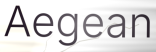
Aegean